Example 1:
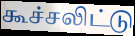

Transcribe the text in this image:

கூச்சலிட்டு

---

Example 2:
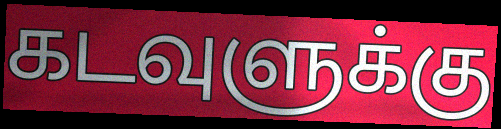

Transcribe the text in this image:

கடவுளுக்கு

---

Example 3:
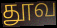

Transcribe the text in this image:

தூவ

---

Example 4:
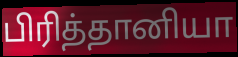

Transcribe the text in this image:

பிரித்தானியா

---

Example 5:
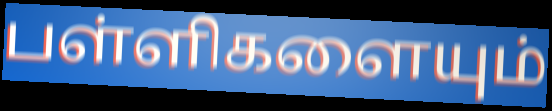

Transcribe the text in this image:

பள்ளிகளையும்